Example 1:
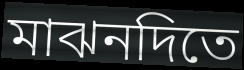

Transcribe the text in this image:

মাঝনদিতে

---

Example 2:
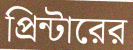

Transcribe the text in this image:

প্রিন্টারের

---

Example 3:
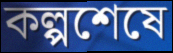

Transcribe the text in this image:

কল্পশেষে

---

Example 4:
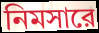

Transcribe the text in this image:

নিমসারে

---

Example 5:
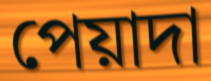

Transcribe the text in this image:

পেয়াদা